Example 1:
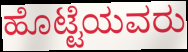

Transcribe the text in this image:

ಹೊಟ್ಟೆಯವರು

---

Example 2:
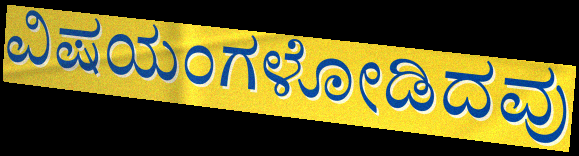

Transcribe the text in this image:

ವಿಷಯಂಗಳೋಡಿದವು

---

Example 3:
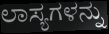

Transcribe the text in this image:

ಲಾಸ್ಯಗಳನ್ನು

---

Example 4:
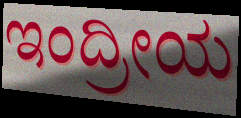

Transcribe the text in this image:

ಇಂದ್ರೀಯ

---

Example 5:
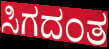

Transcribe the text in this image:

ಸಿಗದಂತ